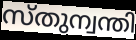
സ്തുന്വന്തി